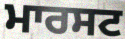
ਮਾਰਸਟ